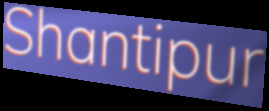
Shantipur